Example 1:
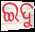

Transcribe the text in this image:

ଇଦୁ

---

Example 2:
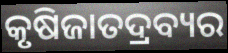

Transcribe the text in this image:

କୃଷିଜାତଦ୍ରବ୍ୟର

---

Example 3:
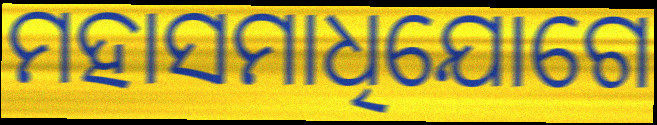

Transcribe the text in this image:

ମହାସମାଧିଯୋଗେ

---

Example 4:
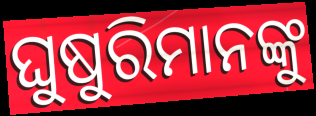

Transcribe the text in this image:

ଘୁଷୁରିମାନଙ୍କୁ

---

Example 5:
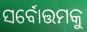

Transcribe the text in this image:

ସର୍ବୋତ୍ତମକୁ